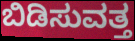
ಬಿಡಿಸುವತ್ತ